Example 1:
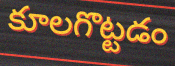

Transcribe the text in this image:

కూలగొట్టడం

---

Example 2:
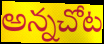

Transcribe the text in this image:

అన్నచోట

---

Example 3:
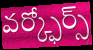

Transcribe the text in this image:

వర్క్ఫోర్స్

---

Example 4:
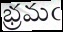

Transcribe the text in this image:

భ్రమఁ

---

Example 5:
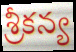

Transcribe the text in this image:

శ్రీకన్య